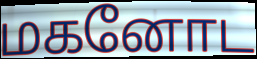
மகனோட